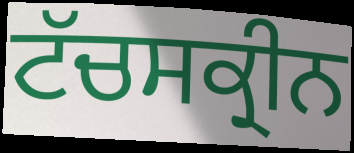
ਟੱਚਸਕ੍ਰੀਨ